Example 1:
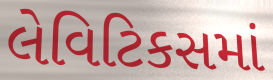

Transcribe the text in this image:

લેવિટિકસમાં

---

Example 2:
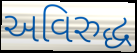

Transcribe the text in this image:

અવિરુદ્ધ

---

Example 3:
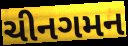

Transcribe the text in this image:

ચીનગમન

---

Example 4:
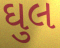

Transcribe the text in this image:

ઘુલ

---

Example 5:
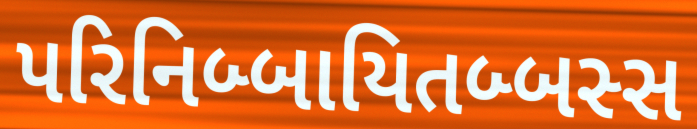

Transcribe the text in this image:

પરિનિબ્બાયિતબ્બસ્સ